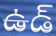
ఉడ్